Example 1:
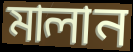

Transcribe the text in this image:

মালান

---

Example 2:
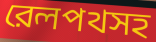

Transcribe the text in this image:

রেলপথসহ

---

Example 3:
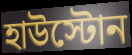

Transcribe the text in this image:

হাউস্টোন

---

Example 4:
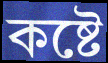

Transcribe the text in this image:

কষ্টে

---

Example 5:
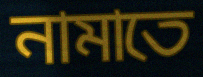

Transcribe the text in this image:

নামাতে